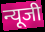
न्यूजी